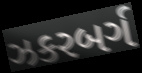
ઝકરબર્ગ